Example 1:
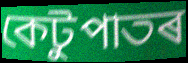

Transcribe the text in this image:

কেটুপাতৰ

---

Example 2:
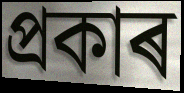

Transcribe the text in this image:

প্ৰকাৰ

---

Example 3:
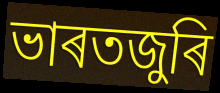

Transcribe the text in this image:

ভাৰতজুৰি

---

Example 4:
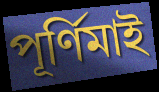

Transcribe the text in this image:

পূৰ্ণিমাই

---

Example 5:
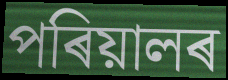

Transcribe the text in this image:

পৰিয়ালৰ